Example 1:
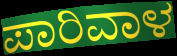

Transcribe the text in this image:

ಪಾರಿವಾಳ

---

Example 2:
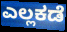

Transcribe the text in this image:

ಎಲ್ಲಕಡೆ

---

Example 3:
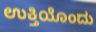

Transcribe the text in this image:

ಉಕ್ತಿಯೊಂದು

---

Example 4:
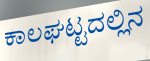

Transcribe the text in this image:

ಕಾಲಘಟ್ಟದಲ್ಲಿನ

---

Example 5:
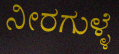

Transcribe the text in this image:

ನೀರಗುಳ್ಳೆ